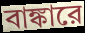
বাঙ্কারে